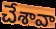
చేశావా